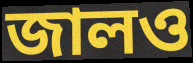
জালও